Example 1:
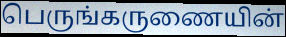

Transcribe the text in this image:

பெருங்கருணையின்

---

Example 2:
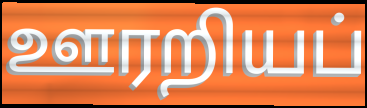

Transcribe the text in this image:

ஊரறியப்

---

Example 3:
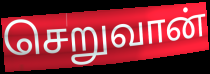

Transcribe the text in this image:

செறுவான்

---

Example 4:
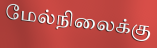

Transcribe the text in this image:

மேல்நிலைக்கு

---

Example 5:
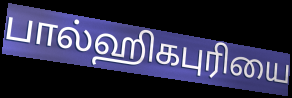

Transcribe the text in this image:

பால்ஹிகபுரியை